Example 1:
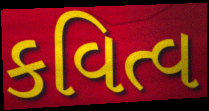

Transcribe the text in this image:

કવિત્વ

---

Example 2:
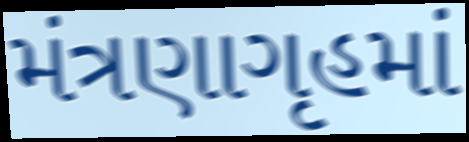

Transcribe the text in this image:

મંત્રણાગૃહમાં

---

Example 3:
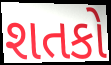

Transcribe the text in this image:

શતકો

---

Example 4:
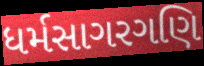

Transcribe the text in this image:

ધર્મસાગરગણિ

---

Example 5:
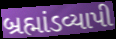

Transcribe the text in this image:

બ્રહ્માંડવ્યાપી